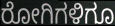
ರೋಗಿಗಳಿಗೂ